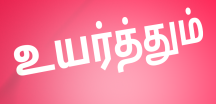
உயர்த்தும்